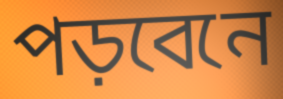
পড়বেনে